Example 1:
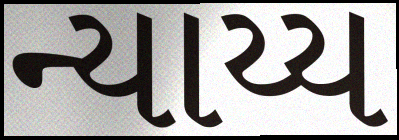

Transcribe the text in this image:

ન્યાય્ય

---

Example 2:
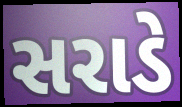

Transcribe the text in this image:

સરાડે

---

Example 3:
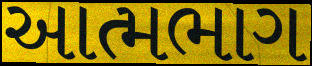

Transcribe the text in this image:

આત્મભાગ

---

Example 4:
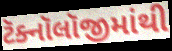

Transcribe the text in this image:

ટૅક્નૉલૉજીમાંથી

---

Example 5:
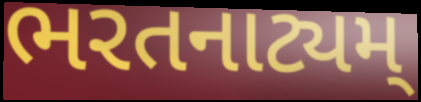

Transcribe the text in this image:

ભરતનાટ્યમ્